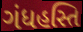
ગંધહસ્તિ